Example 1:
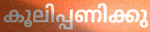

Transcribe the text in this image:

കൂലിപ്പണിക്കു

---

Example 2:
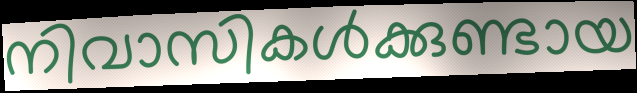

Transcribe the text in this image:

നിവാസികൾക്കുണ്ടായ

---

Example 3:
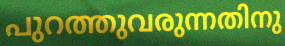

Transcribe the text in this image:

പുറത്തുവരുന്നതിനു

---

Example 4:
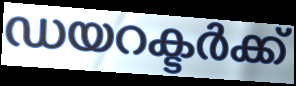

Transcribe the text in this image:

ഡയറക്ടർക്ക്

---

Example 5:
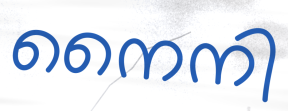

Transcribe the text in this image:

നൈനി